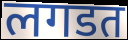
लगडत